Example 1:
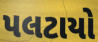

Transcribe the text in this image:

પલટાયો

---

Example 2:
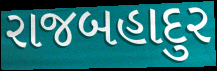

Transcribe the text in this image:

રાજબહાદુર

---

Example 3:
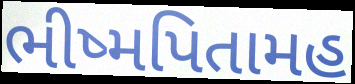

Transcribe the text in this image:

ભીષ્મપિતામહ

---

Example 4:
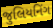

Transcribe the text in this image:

જુલિયનિંગ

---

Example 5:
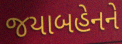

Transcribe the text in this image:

જયાબહેનને